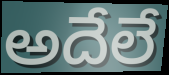
అదేలే